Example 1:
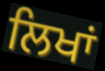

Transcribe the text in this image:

ਲਿਖਾਂ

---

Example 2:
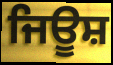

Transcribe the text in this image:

ਜਿਊਸ਼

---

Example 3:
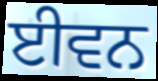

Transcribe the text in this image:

ਈਵਨ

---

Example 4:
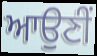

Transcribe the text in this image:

ਆਉਣੀੰ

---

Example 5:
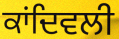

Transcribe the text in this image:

ਕਾਂਦਿਵਲੀ